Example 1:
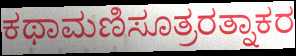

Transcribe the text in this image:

ಕಥಾಮಣಿಸೂತ್ರರತ್ನಾಕರ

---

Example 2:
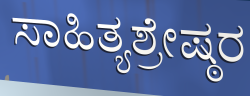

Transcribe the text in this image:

ಸಾಹಿತ್ಯಶ್ರೇಷ್ಠರ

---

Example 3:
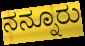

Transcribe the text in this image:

ನನ್ನೂರು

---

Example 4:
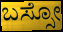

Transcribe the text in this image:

ಬಸ್ಸೋ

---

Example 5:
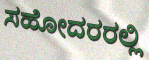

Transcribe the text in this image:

ಸಹೋದರರಲ್ಲಿ